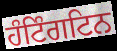
ਹੰਟਿੰਗਟਿਨ